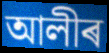
আলীৰ